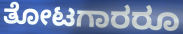
ತೋಟಗಾರರೂ